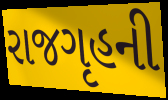
રાજગૃહની